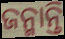
ଜନ୍ମାନ୍ତି